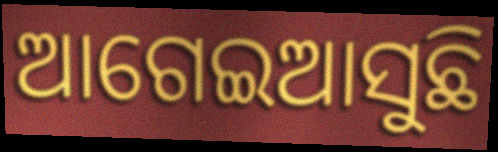
ଆଗେଇଆସୁଛି